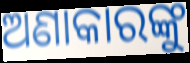
ଅଣାକାରଙ୍କୁ